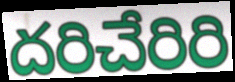
దరిచేరిరి